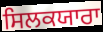
ਸਿਲਕਯਾਰਾ